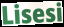
Lisesi